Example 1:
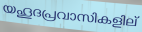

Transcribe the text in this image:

യഹൂദപ്രവാസികളില്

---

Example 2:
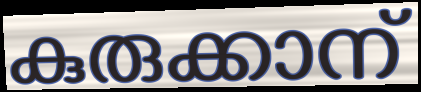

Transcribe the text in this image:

കുരുക്കാന്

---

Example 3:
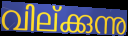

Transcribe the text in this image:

വില്ക്കുന്നു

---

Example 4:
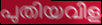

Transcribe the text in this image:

പുതിയവിള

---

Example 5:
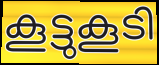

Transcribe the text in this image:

കൂട്ടുകൂടി